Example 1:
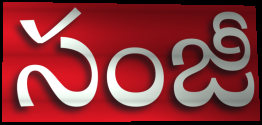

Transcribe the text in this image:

సంజీ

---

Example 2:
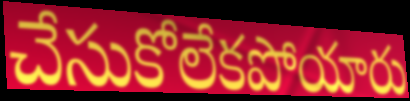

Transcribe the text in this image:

చేసుకోలేకపోయారు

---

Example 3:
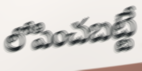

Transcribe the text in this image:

లోపించబట్టే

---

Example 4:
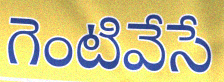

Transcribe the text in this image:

గెంటివేసే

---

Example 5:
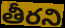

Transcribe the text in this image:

తీరని